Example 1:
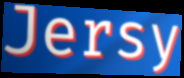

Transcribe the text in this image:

Jersy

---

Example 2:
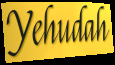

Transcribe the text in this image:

Yehudah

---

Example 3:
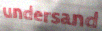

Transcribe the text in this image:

undersand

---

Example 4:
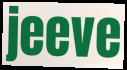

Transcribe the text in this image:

jeeve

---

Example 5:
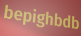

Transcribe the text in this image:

bepighbdb